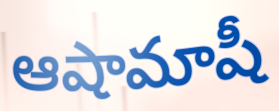
ఆషామాషీ